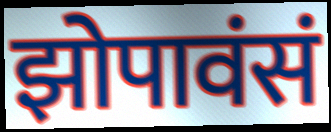
झोपावंसं